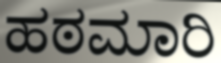
ಹಠಮಾರಿ